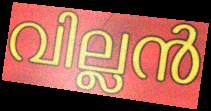
വില്ലൻ